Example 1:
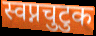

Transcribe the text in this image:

स्वप्नचुटुक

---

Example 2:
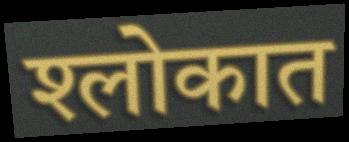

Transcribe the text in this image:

श्लोकात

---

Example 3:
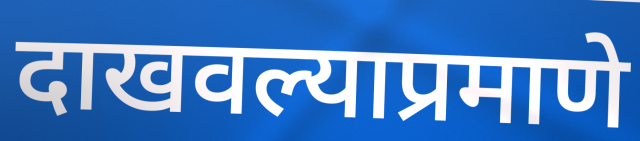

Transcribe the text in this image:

दाखवल्याप्रमाणे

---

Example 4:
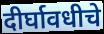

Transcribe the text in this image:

दीर्घावधीचे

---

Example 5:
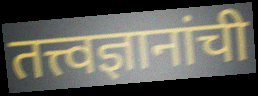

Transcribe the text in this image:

तत्त्वज्ञानांची